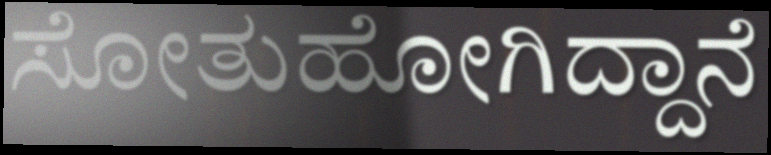
ಸೋತುಹೋಗಿದ್ದಾನೆ